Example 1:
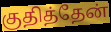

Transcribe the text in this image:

குதித்தேன்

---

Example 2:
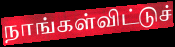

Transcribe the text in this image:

நாங்கள்விட்டுச்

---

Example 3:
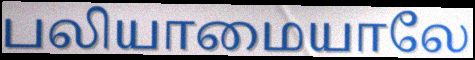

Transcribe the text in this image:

பலியாமையாலே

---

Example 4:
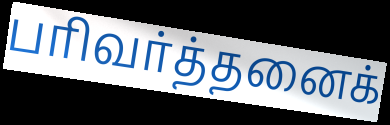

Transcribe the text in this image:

பரிவர்த்தனைக்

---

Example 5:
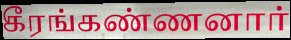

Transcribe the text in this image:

கீரங்கண்ணனார்